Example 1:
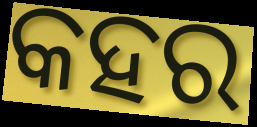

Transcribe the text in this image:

କହର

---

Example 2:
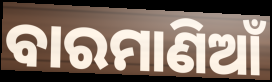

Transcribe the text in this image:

ବାରମାଣିଆଁ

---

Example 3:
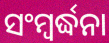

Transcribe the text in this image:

ସଂମ୍ବର୍ଦ୍ଧନା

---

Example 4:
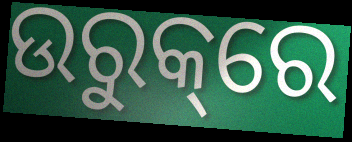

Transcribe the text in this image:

ଉରୁକ୍‌ରେ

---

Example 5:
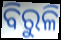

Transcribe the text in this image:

ବିରୁଳି